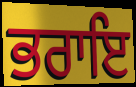
ਭਰਾਇ